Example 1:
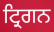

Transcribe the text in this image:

ਟ੍ਰਿਗਨ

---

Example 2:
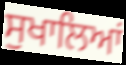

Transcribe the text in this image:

ਸੁਖਾਲਿਆਂ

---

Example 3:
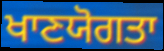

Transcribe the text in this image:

ਖਾਣਯੋਗਤਾ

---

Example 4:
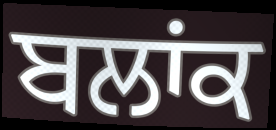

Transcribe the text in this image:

ਬਲਾਂਕ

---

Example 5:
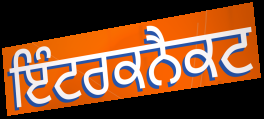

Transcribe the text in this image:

ਇੰਟਰਕਨੈਕਟ